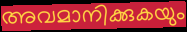
അവമാനിക്കുകയും